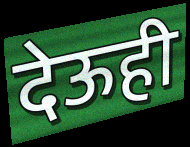
देऊही